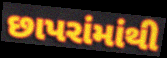
છાપરાંમાંથી